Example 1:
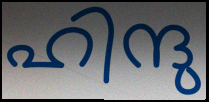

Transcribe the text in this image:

ഹിന്ദു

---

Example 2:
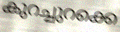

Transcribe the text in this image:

കുറച്ചുറക്കെ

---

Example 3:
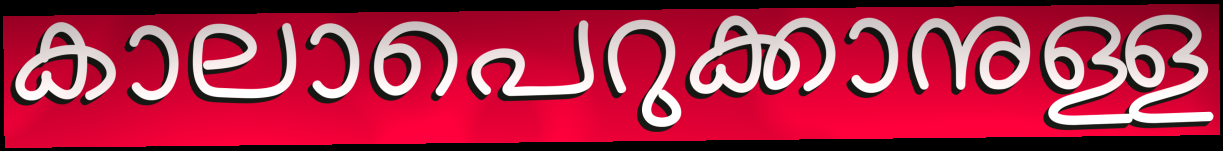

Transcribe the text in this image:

കാലാപെറുക്കാനുള്ള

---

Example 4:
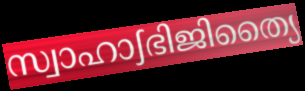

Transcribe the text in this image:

സ്വാഹാഽഭിജിത്യൈ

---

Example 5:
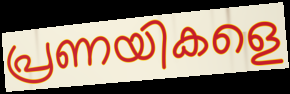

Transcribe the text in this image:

പ്രണയികളെ